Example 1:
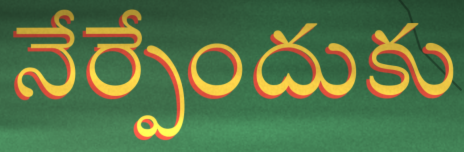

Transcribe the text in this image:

నేర్పేందుకు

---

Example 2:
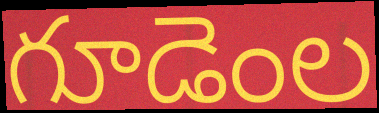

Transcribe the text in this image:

గూడెంల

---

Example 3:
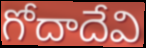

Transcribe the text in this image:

గోదాదేవి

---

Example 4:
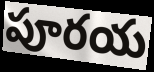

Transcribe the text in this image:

పూరయ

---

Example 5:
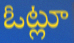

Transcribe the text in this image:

ఓట్లూ